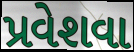
પ્રવેશવા